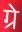
ग्रे